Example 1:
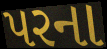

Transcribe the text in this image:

પરના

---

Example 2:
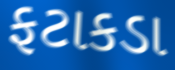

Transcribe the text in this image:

ફટાકડા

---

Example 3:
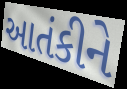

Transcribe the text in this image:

આતંકીને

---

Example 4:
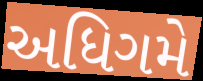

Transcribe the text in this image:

અધિગમે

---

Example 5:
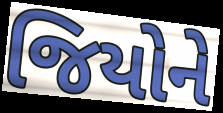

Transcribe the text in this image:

જિયોને